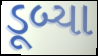
ડૂબ્યા